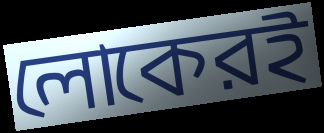
লোকেরই